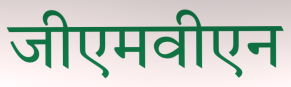
जीएमवीएन